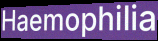
Haemophilia